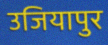
उजियापुर